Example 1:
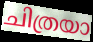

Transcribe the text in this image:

ചിത്രയാ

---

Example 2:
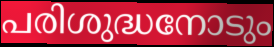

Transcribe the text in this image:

പരിശുദ്ധനോടും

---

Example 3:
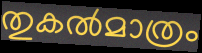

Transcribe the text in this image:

തുകൽമാത്രം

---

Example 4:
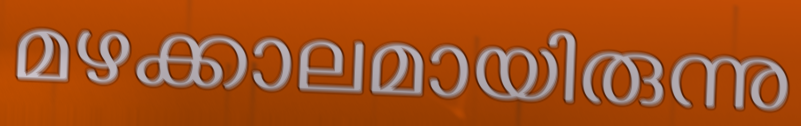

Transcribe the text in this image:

മഴക്കാലമായിരുന്നു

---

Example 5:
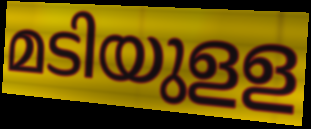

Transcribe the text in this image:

മടിയുളള